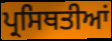
ਪ੍ਰਸਿਥਤੀਆਂ